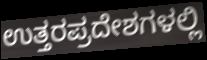
ಉತ್ತರಪ್ರದೇಶಗಳಲ್ಲಿ